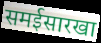
समईसारखा